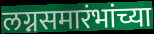
लग्नसमारंभांच्या